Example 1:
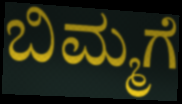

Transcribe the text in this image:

ಬಿಮ್ಮಗೆ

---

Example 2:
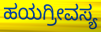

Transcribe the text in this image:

ಹಯಗ್ರೀವಸ್ಯ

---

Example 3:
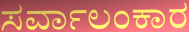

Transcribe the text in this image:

ಸರ್ವಾಲಂಕಾರ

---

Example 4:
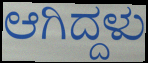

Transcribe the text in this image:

ಆಗಿದ್ದಳು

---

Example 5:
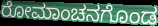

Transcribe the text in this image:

ರೋಮಾಂಚನಗೊಂಡ